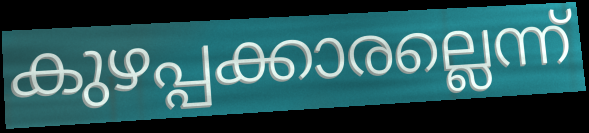
കുഴപ്പക്കാരല്ലെന്ന്